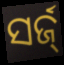
ସର୍ଜ୍